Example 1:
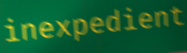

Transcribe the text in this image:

inexpedient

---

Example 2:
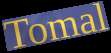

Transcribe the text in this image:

Tomal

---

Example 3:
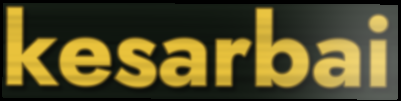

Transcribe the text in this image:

kesarbai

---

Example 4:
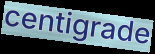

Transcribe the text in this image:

centigrade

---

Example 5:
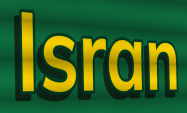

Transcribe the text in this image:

Isran